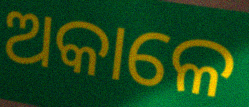
ଅକାଳେ